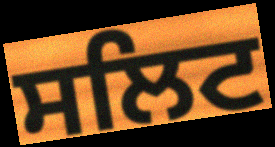
ਸਲਿਟ